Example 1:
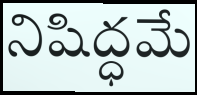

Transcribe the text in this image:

నిషిద్ధమే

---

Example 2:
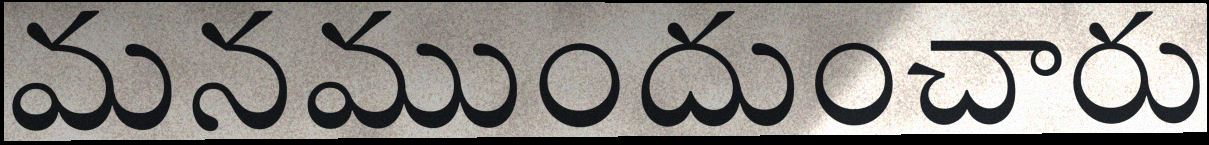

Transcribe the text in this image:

మనముందుంచారు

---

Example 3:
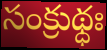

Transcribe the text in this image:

సంక్రుథ్ధః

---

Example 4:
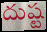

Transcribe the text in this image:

దుష్ట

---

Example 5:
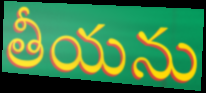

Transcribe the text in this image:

తీయను